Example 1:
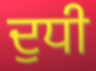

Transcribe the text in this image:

ਦੁਧੀ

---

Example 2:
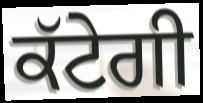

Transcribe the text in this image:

ਕੱਟੇਗੀ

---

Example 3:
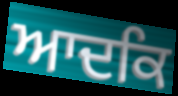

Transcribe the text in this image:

ਆਦਕਿ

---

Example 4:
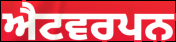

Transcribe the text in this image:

ਐਟਵਰਪਨ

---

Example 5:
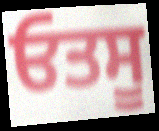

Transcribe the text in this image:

ਓਤਸੂ